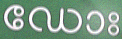
ഡോഃ